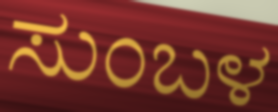
ಸುಂಬಳ